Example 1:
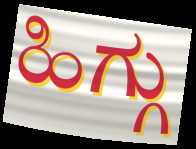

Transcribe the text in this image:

ಹಿಗ್ಗು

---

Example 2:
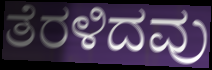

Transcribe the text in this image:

ತೆರಳಿದವು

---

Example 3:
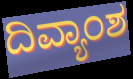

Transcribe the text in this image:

ದಿವ್ಯಾಂಶ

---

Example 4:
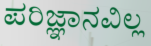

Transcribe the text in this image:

ಪರಿಜ್ಞಾನವಿಲ್ಲ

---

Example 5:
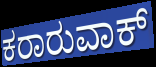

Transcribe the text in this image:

ಕರಾರುವಾಕ್